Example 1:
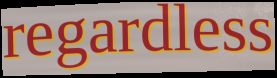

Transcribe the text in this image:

regardless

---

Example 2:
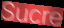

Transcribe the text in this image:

Sucre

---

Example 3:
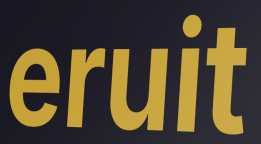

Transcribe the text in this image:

eruit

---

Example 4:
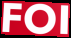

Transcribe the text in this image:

FOI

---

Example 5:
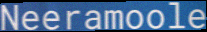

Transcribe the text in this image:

Neeramoole